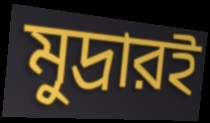
মুদ্রারই